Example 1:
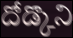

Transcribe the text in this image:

దోడ్కొని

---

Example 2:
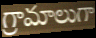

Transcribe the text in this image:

గ్రామాలుగా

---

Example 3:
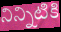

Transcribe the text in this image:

నిన్నిటికి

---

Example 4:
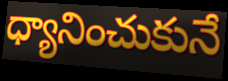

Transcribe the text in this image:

ధ్యానించుకునే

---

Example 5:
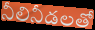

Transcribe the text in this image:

నీలినీడలతో